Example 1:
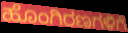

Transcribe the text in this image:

ಹೊಂಗಿರಣಗಳಿಗೆ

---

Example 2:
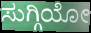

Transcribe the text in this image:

ಸುಗ್ಗಿಯೋ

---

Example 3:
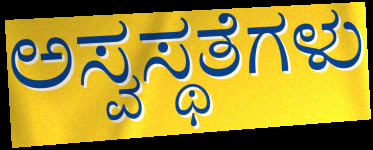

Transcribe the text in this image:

ಅಸ್ವಸ್ಥತೆಗಳು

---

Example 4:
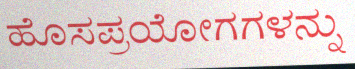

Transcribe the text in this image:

ಹೊಸಪ್ರಯೋಗಗಳನ್ನು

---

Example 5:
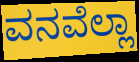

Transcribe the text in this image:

ವನವೆಲ್ಲಾ